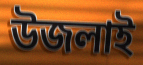
উজলাই